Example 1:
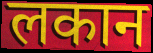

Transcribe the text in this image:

लकान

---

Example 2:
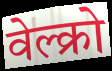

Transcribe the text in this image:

वेल्क्रो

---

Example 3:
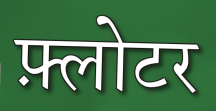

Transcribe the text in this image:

फ़्लोटर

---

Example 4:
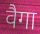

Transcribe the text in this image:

वैगा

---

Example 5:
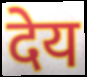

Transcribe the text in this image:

देय